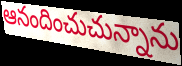
ఆనందించుచున్నాను